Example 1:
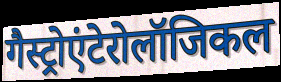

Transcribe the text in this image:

गैस्ट्रोएंटेरोलॉजिकल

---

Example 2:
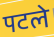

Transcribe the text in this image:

पटले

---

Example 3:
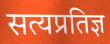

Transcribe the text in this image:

सत्यप्रतिज्ञ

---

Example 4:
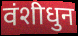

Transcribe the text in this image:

वंशीधुन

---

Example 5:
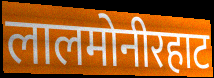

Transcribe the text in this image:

लालमोनीरहाट